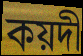
কয়দী